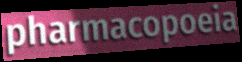
pharmacopoeia